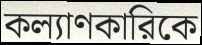
কল্যাণকারিকে